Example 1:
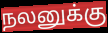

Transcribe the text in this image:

நலனுக்கு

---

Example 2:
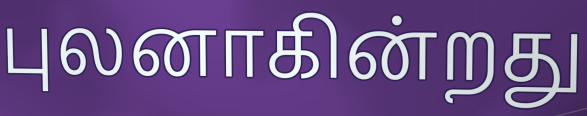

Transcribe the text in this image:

புலனாகின்றது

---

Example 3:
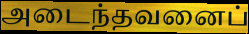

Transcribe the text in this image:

அடைந்தவனைப்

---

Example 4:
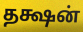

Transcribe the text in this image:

தக்ஷன்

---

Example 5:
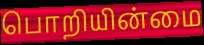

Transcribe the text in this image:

பொறியின்மை